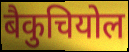
बैकुचियोल